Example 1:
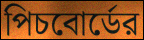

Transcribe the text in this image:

পিচবোর্ডের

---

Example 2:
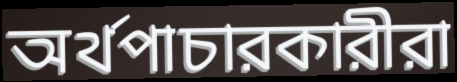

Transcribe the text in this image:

অর্থপাচারকারীরা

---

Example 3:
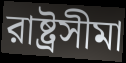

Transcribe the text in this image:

রাষ্ট্রসীমা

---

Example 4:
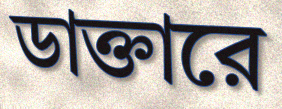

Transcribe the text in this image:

ডাক্তারে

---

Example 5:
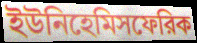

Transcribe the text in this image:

ইউনিহেমিসফেরিক